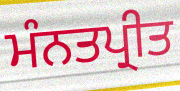
ਮੰਨਤਪ੍ਰੀਤ